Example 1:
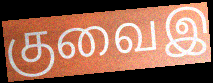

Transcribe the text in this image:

குவைஇ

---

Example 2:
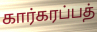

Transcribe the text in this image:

கார்கரப்பத்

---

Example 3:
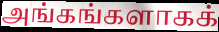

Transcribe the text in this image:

அங்கங்களாகக்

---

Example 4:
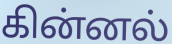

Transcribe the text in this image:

கின்னல்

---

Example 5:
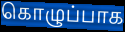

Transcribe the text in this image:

கொழுப்பாக